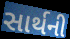
સાર્થની